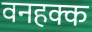
वनहक्क